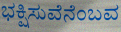
ಭಕ್ಷಿಸುವೆನೆಂಬವ